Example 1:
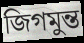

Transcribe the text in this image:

জিগমুন্ত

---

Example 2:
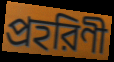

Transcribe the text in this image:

প্রহরিণী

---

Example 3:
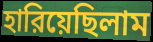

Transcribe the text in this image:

হারিয়েছিলাম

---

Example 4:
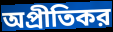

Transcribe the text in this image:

অপ্রীতিকর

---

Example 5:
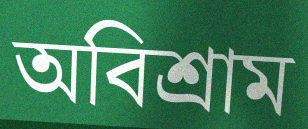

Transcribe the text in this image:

অবিশ্রাম